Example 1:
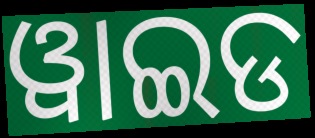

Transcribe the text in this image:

ୱାଇଡ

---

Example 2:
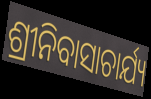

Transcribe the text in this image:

ଶ୍ରୀନିବାସାଚାର୍ଯ୍ୟ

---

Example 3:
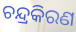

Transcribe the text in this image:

ଚନ୍ଦ୍ରକିରଣ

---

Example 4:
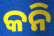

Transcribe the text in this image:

କନି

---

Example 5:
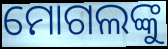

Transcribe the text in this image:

ମୋଗଲଙ୍କୁ